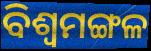
ବିଶ୍ୱମଙ୍ଗଳ